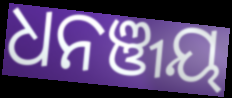
ଧନଞ୍ଜୟ